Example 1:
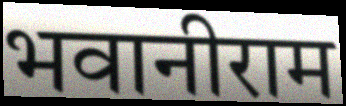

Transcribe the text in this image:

भवानीराम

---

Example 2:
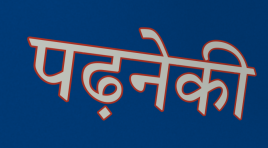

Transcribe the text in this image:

पढ़नेकी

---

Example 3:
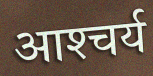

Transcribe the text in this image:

आश्‍चर्य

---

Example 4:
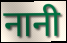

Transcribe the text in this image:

नानी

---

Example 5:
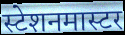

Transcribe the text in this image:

स्टेशनमास्टर